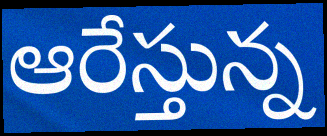
ఆరేస్తున్న